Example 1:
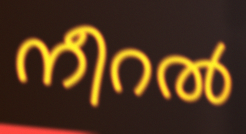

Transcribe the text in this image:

നീറൽ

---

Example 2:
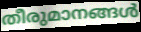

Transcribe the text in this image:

തീരുമാനങ്ങൾ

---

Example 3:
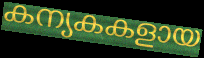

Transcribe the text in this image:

കന്യകകളായ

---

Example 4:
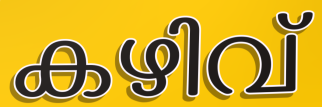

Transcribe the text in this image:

കഴിവ്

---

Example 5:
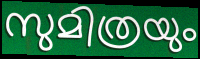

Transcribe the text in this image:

സുമിത്രയും